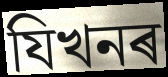
যিখনৰ